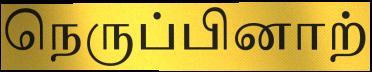
நெருப்பினாற்